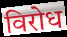
विरोध